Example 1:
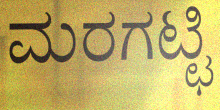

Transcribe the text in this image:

ಮರಗಟ್ಟಿ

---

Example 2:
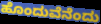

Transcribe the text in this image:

ಹೊಂದುವೆನೆಂದು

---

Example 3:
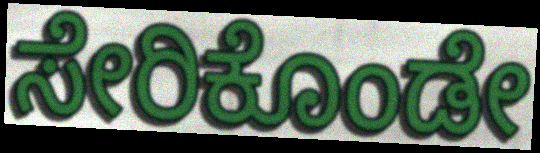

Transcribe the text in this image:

ಸೇರಿಕೊಂಡೇ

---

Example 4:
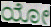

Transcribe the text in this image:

ಯೋ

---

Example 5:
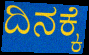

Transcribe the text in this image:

ದಿನಕ್ಕೆ